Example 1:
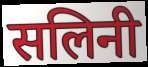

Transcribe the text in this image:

सलिनी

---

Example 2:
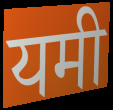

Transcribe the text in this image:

यमी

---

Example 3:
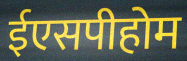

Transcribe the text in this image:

ईएसपीहोम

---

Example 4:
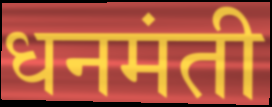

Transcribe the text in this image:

धनमंती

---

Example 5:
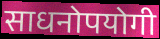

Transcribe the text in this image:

साधनोपयोगी